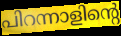
പിറന്നാളിന്റെ